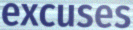
excuses